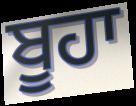
ਬੂਹਾ